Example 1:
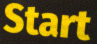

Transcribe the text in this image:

Start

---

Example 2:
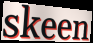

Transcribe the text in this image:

skeen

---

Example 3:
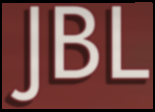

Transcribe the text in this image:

JBL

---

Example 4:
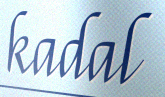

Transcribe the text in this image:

kadal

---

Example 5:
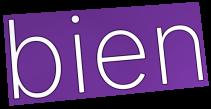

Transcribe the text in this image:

bien